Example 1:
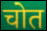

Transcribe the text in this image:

चोत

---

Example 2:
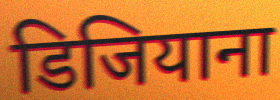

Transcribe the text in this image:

डिजियाना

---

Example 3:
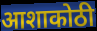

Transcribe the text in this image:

आशाकोठी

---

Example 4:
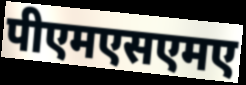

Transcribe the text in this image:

पीएमएसएमए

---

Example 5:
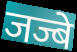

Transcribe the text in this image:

जज्बे